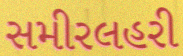
સમીરલહરી